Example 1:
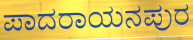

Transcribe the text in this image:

ಪಾದರಾಯನಪುರ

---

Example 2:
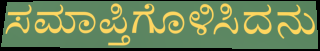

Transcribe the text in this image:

ಸಮಾಪ್ತಿಗೊಳಿಸಿದನು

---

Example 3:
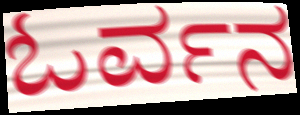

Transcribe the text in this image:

ಓರ್ವನ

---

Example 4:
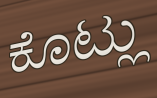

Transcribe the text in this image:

ಕೊಟ್ಲು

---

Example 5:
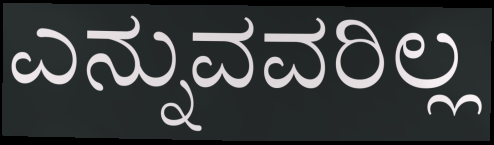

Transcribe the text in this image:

ಎನ್ನುವವರಿಲ್ಲ